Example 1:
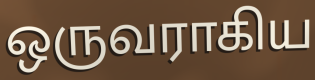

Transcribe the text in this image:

ஒருவராகிய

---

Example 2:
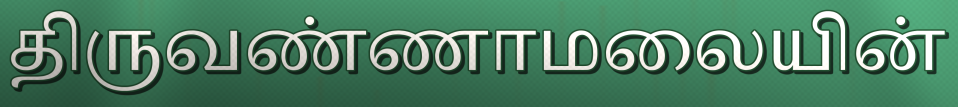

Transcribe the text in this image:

திருவண்ணாமலையின்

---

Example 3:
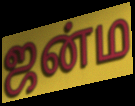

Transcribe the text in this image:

ஜன்ம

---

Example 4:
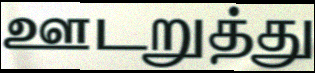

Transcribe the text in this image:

ஊடறுத்து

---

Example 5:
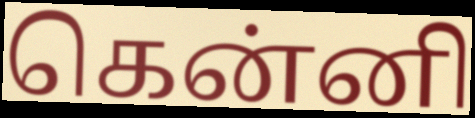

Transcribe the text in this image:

கென்னி